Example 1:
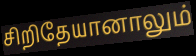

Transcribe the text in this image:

சிறிதேயானாலும்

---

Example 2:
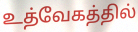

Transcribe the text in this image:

உத்வேகத்தில்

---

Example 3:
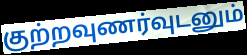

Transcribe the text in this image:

குற்றவுணர்வுடனும்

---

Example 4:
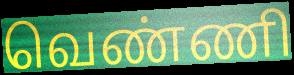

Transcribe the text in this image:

வெண்ணி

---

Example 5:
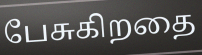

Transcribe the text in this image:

பேசுகிறதை